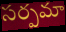
సర్పమా